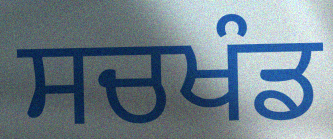
ਸਚਖੰਡ